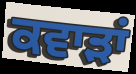
ਕਵਾੜਾਂ